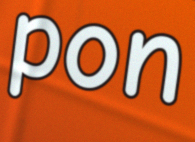
pon